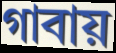
গাবায়